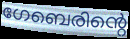
ഗേബെരിന്റെ